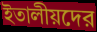
ইতালীয়দের